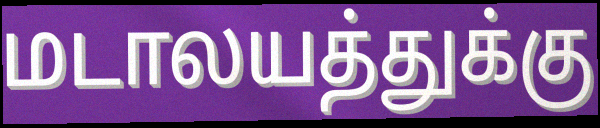
மடாலயத்துக்கு